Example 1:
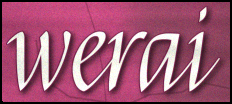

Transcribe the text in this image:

werai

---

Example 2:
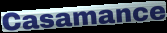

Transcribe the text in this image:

Casamance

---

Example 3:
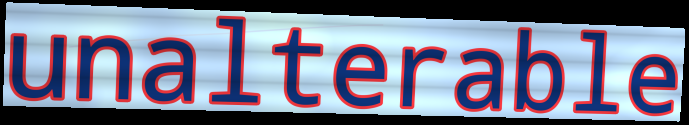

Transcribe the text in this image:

unalterable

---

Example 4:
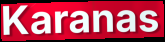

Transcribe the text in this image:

Karanas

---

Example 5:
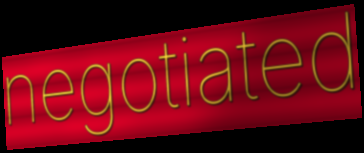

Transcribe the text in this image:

negotiated